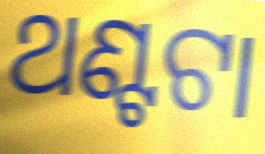
ଥଣ୍ଟଟା